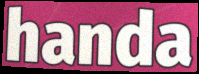
handa